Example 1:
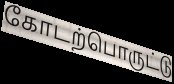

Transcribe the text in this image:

கோடற்பொருட்டு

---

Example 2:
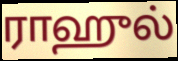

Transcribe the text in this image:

ராஹுல்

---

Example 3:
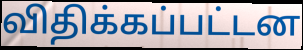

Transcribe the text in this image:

விதிக்கப்பட்டன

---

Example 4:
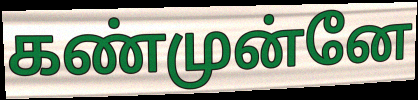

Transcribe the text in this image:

கண்முன்னே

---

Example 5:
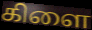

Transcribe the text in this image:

கிளை